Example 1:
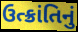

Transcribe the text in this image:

ઉત્ક્રાંતિનું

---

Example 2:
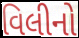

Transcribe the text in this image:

વિલીનો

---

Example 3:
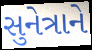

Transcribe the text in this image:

સુનેત્રાને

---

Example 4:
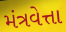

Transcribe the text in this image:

મંત્રવેત્તા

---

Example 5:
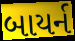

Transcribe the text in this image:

બાયર્ન